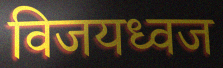
विजयध्वज